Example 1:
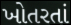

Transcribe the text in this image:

ખોતરતાં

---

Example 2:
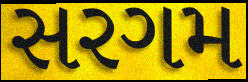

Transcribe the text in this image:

સરગમ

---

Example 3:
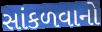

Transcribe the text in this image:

સાંકળવાનો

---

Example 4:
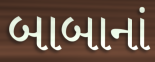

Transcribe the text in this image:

બાબાનાં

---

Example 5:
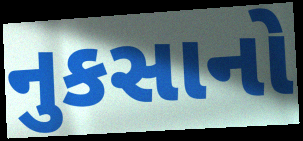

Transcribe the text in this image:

નુકસાનો